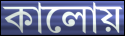
কালোয়